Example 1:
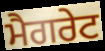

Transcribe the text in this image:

ਮੈਗਰੇਟ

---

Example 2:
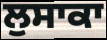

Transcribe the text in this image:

ਲੁਸਾਕਾ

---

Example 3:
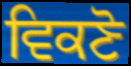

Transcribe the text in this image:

ਵਿਕਣੋ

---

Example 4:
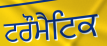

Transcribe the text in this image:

ਟਰੌਮੈਟਿਕ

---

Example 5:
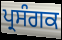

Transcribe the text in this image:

ਪ੍ਰਸੰਗਕ